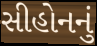
સીહોનનું